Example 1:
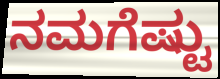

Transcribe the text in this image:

ನಮಗೆಷ್ಟು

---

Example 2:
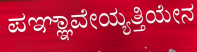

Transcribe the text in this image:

ಪಞ್ಞಾವೇಯ್ಯತ್ತಿಯೇನ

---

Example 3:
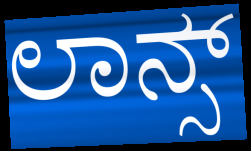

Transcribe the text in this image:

ಲಾನ್ಸ್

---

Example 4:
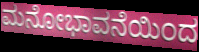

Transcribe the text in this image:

ಮನೋಭಾವನೆಯಿಂದ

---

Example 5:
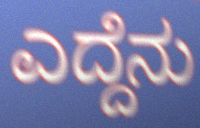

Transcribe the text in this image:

ಎದ್ದೆನು